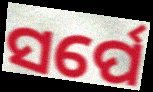
ସର୍ପେ